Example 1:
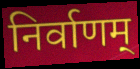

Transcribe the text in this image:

निर्वाणम्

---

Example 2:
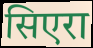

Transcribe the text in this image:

सिएरा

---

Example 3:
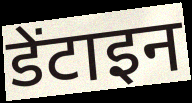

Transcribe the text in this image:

डेंटाइन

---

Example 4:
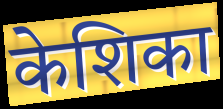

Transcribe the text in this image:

केशिका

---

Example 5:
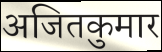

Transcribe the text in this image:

अजितकुमार